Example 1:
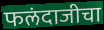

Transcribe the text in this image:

फलंदाजीचा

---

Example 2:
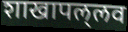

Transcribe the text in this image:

शाखापल्लव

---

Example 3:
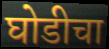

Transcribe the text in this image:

घोडीचा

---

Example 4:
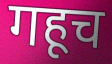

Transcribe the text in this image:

गहूच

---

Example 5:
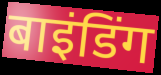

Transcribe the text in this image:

बाइंडिंग